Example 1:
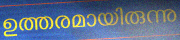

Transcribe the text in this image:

ഉത്തരമായിരുന്നു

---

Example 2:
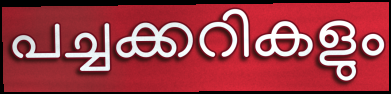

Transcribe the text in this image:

പച്ചക്കറികളും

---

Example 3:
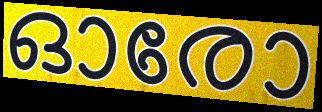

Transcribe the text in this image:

ഓരോ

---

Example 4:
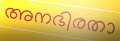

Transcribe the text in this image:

അനഭിരതാ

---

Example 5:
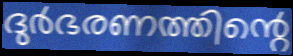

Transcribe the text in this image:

ദുർഭരണത്തിന്റെ